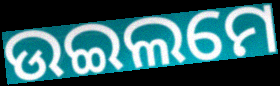
ଉଇଲମେ